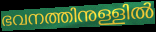
ഭവനത്തിനുള്ളിൽ